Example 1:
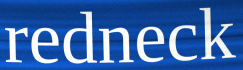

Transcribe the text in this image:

redneck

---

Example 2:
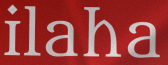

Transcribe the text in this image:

ilaha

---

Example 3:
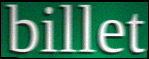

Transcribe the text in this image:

billet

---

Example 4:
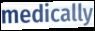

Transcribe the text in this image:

medically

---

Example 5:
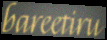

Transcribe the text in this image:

bareetiru